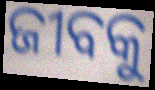
ଜୀବକୁ